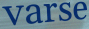
varse